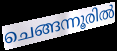
ചെങ്ങന്നൂരിൽ